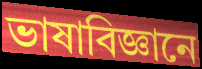
ভাষাবিজ্ঞানে